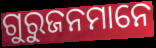
ଗୁରୁଜନମାନେ